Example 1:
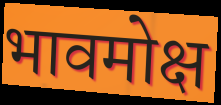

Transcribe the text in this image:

भावमोक्ष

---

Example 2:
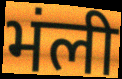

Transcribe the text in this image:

भंली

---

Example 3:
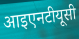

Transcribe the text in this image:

आइएनटीयूसी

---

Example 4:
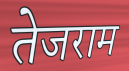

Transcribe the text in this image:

तेजराम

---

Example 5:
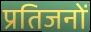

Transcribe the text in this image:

प्रतिजनों